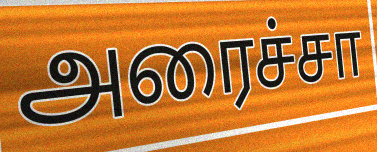
அரைச்சா